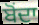
ਬੋੰਦਾ